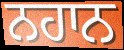
ਨਹਾਨ